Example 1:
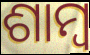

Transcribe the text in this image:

ଶାମ୍ୱ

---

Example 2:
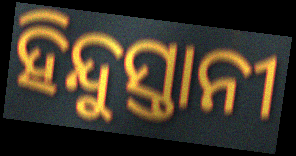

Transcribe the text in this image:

ହିନ୍ଦୁସ୍ତାନୀ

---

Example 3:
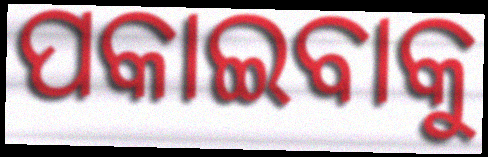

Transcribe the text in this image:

ପକାଇବାକୁ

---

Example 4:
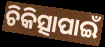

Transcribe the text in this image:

ଚିକିତ୍ସାପାଇଁ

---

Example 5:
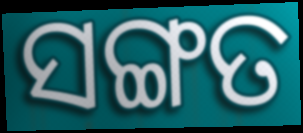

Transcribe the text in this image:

ସଙ୍ଗତ